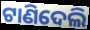
ଟାଣିଦେଲି